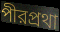
পীরপ্রথা